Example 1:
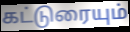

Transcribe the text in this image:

கட்டுரையும்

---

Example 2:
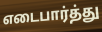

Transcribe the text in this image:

எடைபார்த்து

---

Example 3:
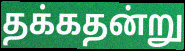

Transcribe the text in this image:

தக்கதன்று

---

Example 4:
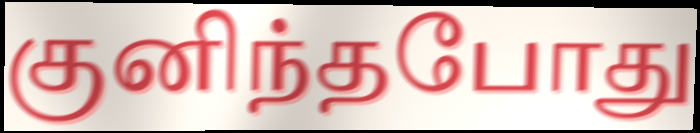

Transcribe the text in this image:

குனிந்தபோது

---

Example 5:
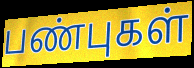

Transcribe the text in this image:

பண்புகள்